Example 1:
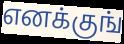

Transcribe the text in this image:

எனக்குங்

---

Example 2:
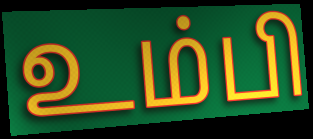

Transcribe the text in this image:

உம்பி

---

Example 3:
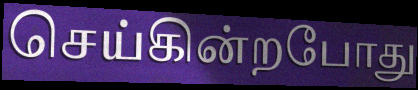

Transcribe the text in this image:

செய்கின்றபோது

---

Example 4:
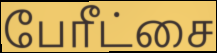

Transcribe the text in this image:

பேரீட்சை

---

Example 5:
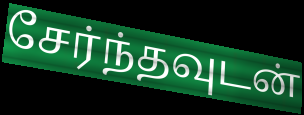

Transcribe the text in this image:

சேர்ந்தவுடன்